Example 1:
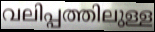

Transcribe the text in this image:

വലിപ്പത്തിലുള്ള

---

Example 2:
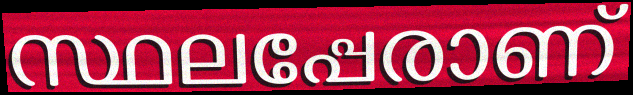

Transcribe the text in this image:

സ്ഥലപ്പേരാണ്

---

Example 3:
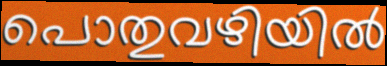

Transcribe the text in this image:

പൊതുവഴിയിൽ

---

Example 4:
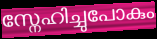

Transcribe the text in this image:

സ്നേഹിച്ചുപോകും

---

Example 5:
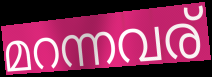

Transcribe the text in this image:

മറന്നവര്